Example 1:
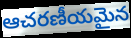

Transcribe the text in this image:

ఆచరణీయమైన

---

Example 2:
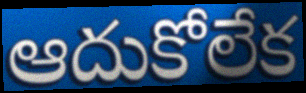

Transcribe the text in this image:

ఆదుకోలేక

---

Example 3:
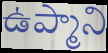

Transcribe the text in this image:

ఉప్మాని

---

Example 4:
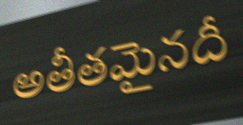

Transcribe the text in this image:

అతీతమైనదీ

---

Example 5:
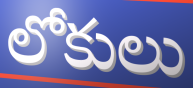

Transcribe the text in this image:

లోకులు